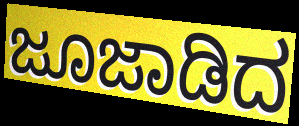
ಜೂಜಾಡಿದ